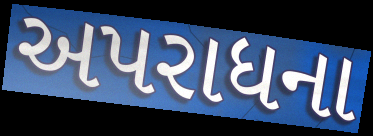
અપરાધના